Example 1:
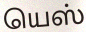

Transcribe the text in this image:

யெஸ்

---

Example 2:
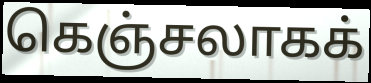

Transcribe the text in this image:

கெஞ்சலாகக்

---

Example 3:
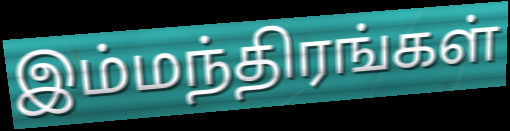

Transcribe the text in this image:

இம்மந்திரங்கள்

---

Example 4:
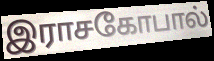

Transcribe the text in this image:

இராசகோபால்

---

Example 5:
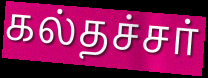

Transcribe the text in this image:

கல்தச்சர்